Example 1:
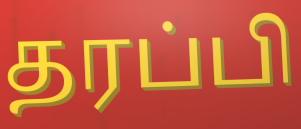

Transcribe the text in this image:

தரப்பி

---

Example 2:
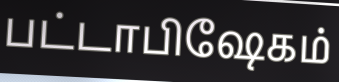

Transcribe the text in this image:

பட்டாபிஷேகம்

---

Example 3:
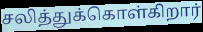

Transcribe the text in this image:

சலித்துக்கொள்கிறார்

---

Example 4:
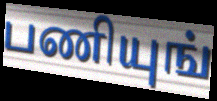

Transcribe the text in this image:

பணியுங்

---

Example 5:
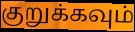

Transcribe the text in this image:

குறுக்கவும்